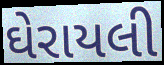
ઘેરાયલી